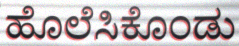
ಹೊಲೆಸಿಕೊಂಡು